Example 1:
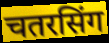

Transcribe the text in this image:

चतरसिंग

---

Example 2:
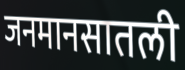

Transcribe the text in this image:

जनमानसातली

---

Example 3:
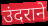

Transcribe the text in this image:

उंदराने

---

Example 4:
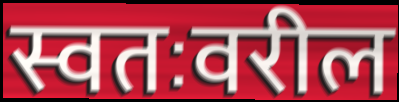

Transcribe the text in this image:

स्वतःवरील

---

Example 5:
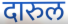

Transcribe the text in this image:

दारुल